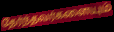
தேர்ந்தவர்களையும்